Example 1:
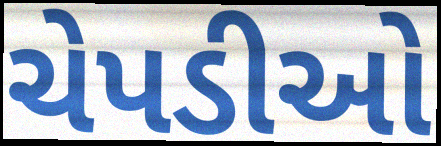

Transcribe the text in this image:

ચેપડીઓ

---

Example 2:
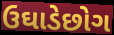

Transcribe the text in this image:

ઉઘાડેછોગ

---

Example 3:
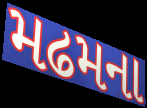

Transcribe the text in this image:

મઢમના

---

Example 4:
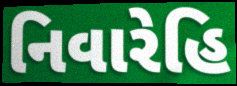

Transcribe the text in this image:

નિવારેહિ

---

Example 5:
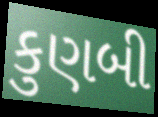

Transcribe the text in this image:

કુણબી